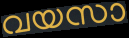
വയസാ